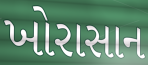
ખોરાસાન